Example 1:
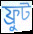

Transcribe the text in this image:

ফ্রুট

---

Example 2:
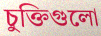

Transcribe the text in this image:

চুক্তিগুলো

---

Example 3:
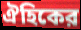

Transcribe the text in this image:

ঐহিকের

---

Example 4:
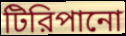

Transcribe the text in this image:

টিরিপানো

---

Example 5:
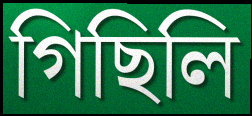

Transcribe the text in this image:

গিছিলি